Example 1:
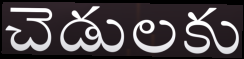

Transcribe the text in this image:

చెడులకు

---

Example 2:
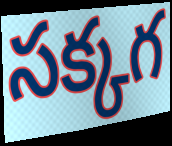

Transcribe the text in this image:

సక్కగ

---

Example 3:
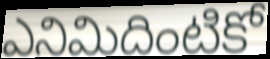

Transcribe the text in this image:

ఎనిమిదింటికో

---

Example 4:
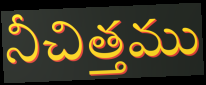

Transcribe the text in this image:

నీచిత్తము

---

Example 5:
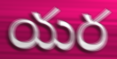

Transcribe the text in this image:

యర